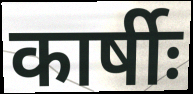
कार्षीः